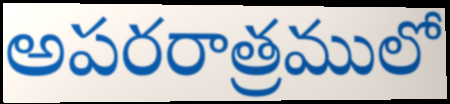
అపరరాత్రములో